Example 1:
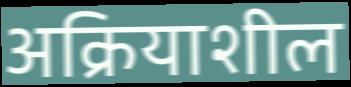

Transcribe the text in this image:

अक्रियाशील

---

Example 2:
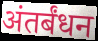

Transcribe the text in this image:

अंतर्बंधन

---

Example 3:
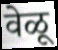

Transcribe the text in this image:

वेळू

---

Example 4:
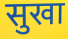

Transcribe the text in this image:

सुखा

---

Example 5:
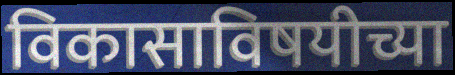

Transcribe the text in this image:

विकासाविषयीच्या